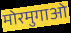
मोरमुगाओ